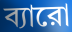
ব্যারো